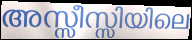
അസ്സീസ്സിയിലെ